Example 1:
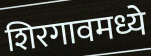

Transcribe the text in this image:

शिरगावमध्ये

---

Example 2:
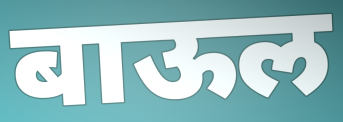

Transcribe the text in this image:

बाऊल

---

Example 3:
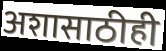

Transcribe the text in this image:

अशासाठीही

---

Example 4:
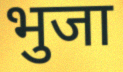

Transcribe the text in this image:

भुजा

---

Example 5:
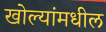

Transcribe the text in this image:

खोल्यांमधील